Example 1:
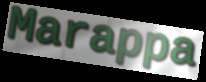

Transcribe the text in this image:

Marappa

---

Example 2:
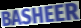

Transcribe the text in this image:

BASHEER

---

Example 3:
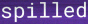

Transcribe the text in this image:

spilled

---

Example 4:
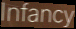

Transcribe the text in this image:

Infancy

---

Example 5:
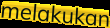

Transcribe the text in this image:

melakukan